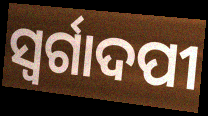
ସ୍ବର୍ଗାଦପୀ